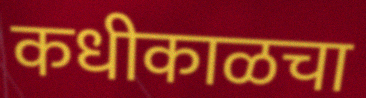
कधीकाळचा